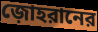
জ়োহরানের